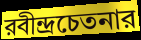
রবীন্দ্রচেতনার